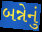
બન્નેનું